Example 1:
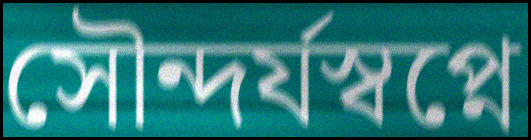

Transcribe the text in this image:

সৌন্দর্যস্বপ্নে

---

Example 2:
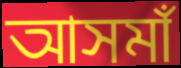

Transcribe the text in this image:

আসমাঁ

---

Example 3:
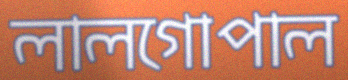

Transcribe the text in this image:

লালগোপাল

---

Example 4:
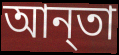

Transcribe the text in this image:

আন্‌তা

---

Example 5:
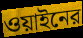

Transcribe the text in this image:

ওয়াইনের